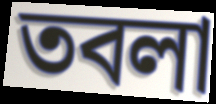
তবলা